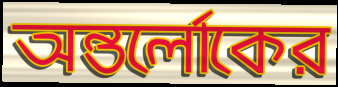
অন্তর্লোকের